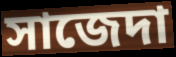
সাজেদা